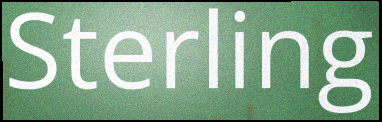
Sterling